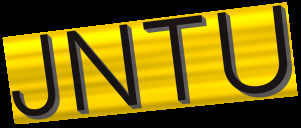
JNTU